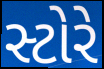
સ્ટોરે